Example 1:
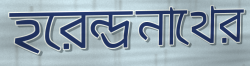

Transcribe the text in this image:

হরেন্দ্রনাথের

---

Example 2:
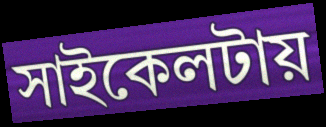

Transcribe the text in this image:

সাইকেলটায়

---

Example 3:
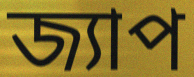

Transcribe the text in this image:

জ্যাপ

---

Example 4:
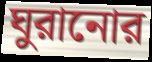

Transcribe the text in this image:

ঘুরানোর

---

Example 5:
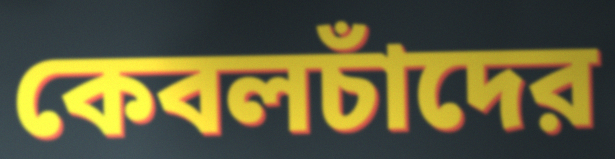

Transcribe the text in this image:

কেবলচাঁদের